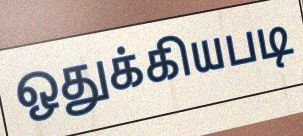
ஒதுக்கியபடி